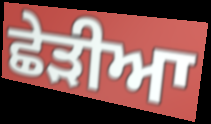
ਛੇੜੀਆ